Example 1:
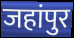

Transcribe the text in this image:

जहांपुर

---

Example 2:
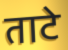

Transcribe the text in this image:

ताटे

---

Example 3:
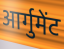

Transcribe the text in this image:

आर्गुमेंट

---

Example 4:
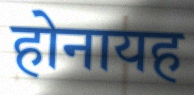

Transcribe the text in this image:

होनायह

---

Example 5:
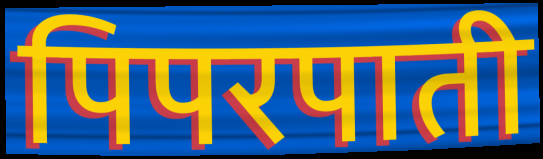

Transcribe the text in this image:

पिपरपाती